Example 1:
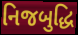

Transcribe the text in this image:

નિજબુદ્ધિ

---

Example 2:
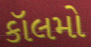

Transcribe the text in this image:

કૉલમો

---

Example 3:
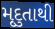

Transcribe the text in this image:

મૃદુતાથી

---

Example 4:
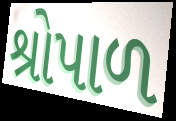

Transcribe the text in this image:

શ્રોપાળ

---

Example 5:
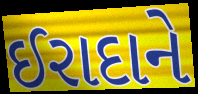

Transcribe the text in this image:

ઈરાદાને